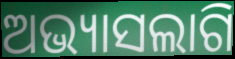
ଅଭ୍ୟାସଲାଗି